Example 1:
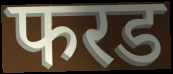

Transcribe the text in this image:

फरड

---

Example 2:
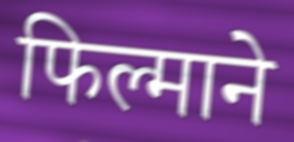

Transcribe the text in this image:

फिल्माने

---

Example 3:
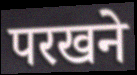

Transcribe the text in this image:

परखने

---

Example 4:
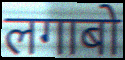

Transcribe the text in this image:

लगाबो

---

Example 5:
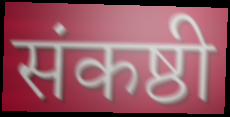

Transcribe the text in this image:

संकष्ठी